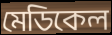
মেডিকেল